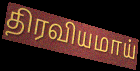
திரவியமாய்